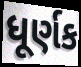
ધૂર્ણક